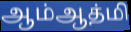
ஆம்ஆத்மி